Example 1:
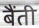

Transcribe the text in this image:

बैंती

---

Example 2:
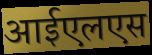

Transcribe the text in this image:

आईएलएस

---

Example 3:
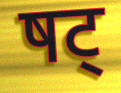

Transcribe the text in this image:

षट्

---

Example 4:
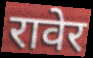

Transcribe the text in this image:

रावेर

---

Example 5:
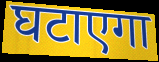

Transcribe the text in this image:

घटाएगा